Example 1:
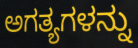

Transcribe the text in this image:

ಅಗತ್ಯಗಳನ್ನು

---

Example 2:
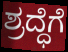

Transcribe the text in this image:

ಶ್ರದ್ಧೆಗೆ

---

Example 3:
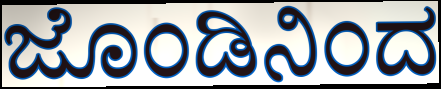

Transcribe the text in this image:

ಜೊಂಡಿನಿಂದ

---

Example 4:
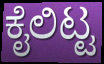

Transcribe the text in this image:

ಕೈಲಿಟ್ಟ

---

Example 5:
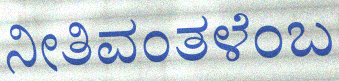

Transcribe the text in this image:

ನೀತಿವಂತಳೆಂಬ